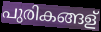
പുരികങ്ങള്